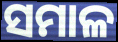
ସମାଳ